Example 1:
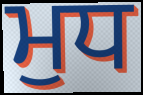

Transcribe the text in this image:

ਮੁਧ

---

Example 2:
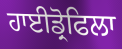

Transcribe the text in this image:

ਹਾਈਡ੍ਰੋਫਿਲਾ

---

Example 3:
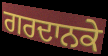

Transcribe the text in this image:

ਗਰਦਾਨਕੇ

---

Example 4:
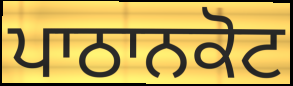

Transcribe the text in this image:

ਪਾਠਾਨਕੋਟ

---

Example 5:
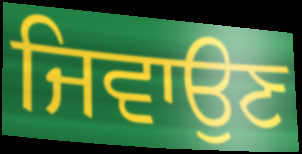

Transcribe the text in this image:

ਜਿਵਾਉਣ